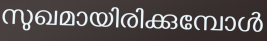
സുഖമായിരിക്കുമ്പോൾ